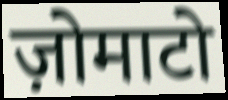
ज़ोमाटो